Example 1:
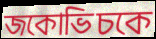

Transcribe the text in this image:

জকোভিচকে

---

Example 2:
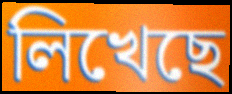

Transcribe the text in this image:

লিখেছে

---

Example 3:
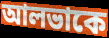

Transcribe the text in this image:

আলভাকে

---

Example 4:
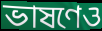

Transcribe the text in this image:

ভাষণেও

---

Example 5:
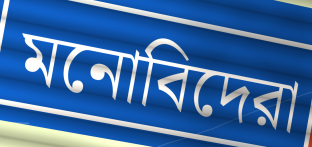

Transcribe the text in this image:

মনোবিদেরা